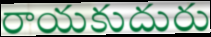
రాయకుదురు